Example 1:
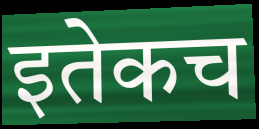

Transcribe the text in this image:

इतेकच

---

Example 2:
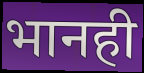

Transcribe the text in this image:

भानही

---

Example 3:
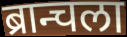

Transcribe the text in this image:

ब्रान्चला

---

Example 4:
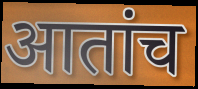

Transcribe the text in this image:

आतांच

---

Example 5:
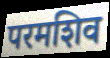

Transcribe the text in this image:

परमशिव